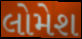
લોમેશ